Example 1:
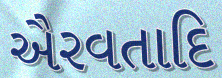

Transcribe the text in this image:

ઐરવતાદિ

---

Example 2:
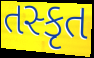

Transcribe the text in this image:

તસ્કૃત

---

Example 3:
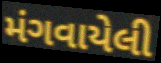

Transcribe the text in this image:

મંગવાયેલી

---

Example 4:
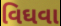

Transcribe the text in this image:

વિઘવા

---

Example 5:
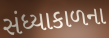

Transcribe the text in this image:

સંધ્યાકાળના